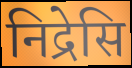
निद्रेसि